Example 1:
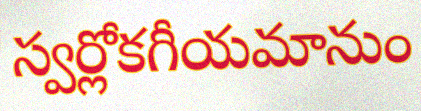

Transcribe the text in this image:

స్వర్లోకగీయమానుం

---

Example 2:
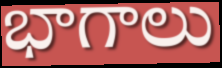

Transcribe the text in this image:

భాగాలు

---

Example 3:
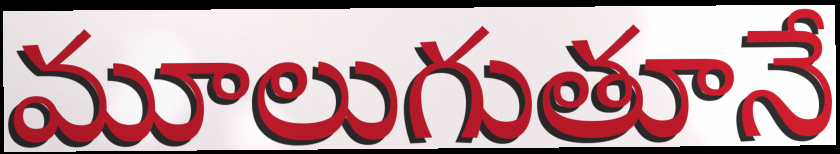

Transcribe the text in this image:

మూలుగుతూనే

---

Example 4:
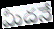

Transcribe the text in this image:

మీదనే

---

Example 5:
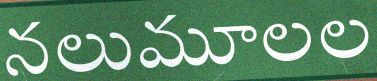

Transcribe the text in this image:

నలుమూలల